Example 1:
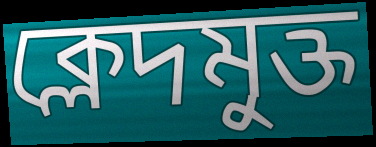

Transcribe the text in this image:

ক্লেদমুক্ত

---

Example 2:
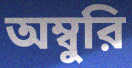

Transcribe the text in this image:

অম্বুরি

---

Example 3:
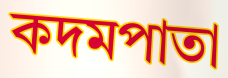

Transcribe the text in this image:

কদমপাতা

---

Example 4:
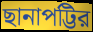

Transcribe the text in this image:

ছানাপট্টির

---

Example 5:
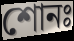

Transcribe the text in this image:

শোনঃ